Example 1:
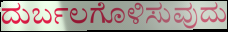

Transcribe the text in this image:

ದುರ್ಬಲಗೊಳಿಸುವುದು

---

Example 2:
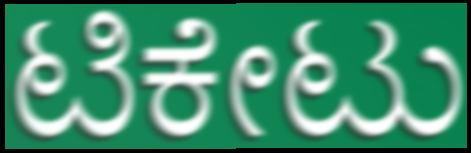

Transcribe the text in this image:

ಟಿಕೇಟು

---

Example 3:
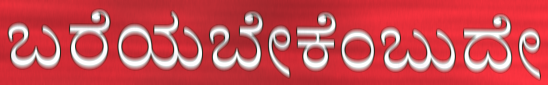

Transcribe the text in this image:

ಬರೆಯಬೇಕೆಂಬುದೇ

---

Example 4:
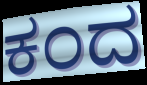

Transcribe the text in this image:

ಕಂದ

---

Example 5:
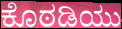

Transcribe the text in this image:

ಕೊಠಡಿಯು